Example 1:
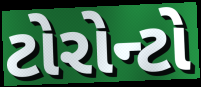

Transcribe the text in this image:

ટોરોન્ટો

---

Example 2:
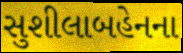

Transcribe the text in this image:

સુશીલાબહેનના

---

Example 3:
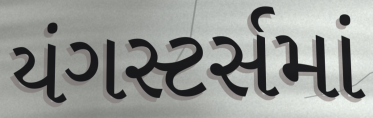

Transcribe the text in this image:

યંગસ્ટર્સમાં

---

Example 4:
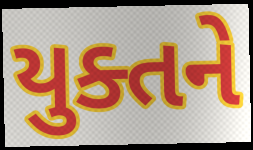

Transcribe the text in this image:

યુક્તને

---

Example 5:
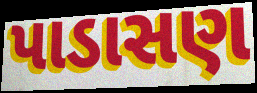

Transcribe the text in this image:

પાડાસણ